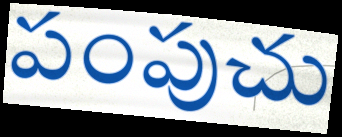
పంపుచు